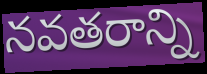
నవతరాన్ని